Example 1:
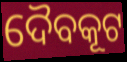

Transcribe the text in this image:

ଦୈବକୂଟ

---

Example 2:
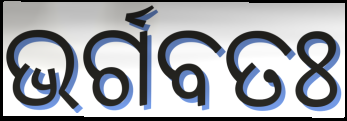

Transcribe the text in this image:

ଭର୍ଗବତଃ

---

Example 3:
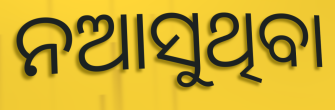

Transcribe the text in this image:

ନଆସୁଥିବା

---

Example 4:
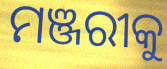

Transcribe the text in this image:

ମଞ୍ଜରୀକୁ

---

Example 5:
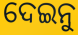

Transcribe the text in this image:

ଦେଇନୁ